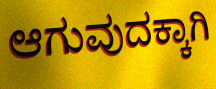
ಆಗುವುದಕ್ಕಾಗಿ